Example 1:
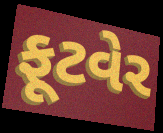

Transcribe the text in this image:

ફૂટવેર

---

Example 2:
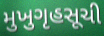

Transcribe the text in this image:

મુખુગૃહસૂચી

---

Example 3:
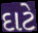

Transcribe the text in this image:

દાટે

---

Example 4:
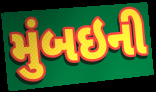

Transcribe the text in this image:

મુંબઇની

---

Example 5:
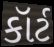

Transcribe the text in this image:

કૉર્ટ